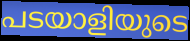
പടയാളിയുടെ